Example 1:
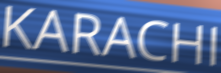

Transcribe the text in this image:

KARACHI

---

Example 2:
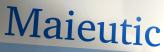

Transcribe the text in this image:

Maieutic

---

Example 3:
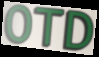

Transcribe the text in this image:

OTD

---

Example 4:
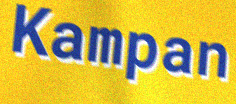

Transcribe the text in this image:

Kampan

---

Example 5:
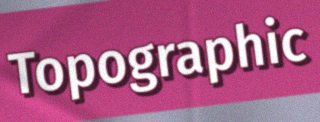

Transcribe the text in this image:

Topographic